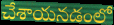
చేశాయనడంలో